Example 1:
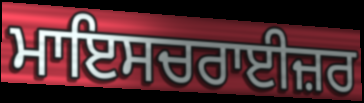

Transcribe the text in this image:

ਮਾਇਸਚਰਾਈਜ਼ਰ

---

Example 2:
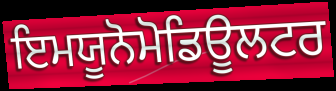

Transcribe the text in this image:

ਇਮਯੂਨੋਮੋਡਿਊਲਟਰ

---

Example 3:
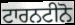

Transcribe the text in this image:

ਟਾਰਨਟੀਨੋ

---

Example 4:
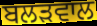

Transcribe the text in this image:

ਬਲੜਵਾਲ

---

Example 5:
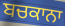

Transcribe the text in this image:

ਬਚਕਾਨਾ